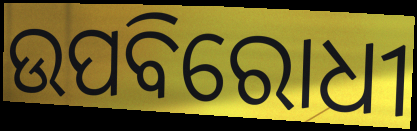
ଉପବିରୋଧୀ